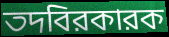
তদবিরকারক